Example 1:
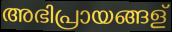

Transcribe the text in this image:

അഭിപ്രായങ്ങള്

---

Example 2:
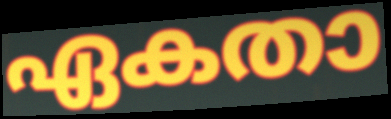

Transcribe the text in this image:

ഏകതാ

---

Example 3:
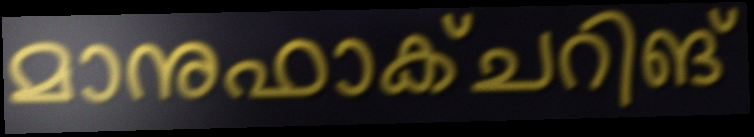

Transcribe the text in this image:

മാനുഫാക്ചറിങ്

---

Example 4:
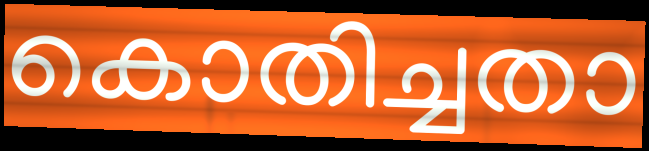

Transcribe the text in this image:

കൊതിച്ചതാ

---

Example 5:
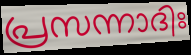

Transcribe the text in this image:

പ്രസന്നാദിഃ